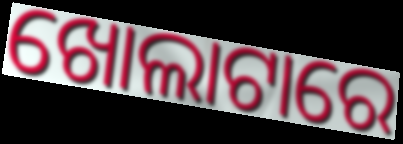
ଖୋଲାଟାରେ